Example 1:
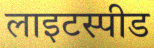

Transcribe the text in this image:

लाइटस्पीड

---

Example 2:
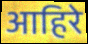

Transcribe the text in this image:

आहिरे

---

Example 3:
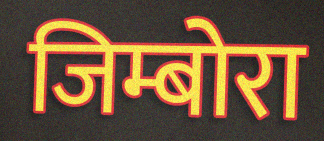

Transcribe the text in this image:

जिम्बोरा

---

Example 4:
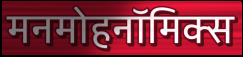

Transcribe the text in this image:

मनमोहनॉमिक्स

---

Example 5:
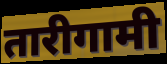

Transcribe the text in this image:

तारीगामी